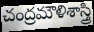
చంద్రమౌళిశాస్త్రి